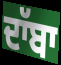
ਦਾੱਬਾ